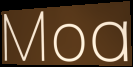
Moa